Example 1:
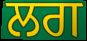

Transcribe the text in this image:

ਲਗ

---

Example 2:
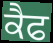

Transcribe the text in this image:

ਕੈਫ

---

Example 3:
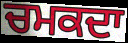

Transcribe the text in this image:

ਚਮਕਦਾ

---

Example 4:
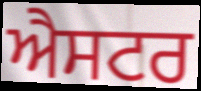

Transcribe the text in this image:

ਐਸਟਰ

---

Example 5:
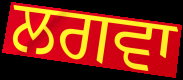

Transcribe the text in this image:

ਲਗਵਾ